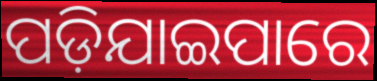
ପଡ଼ିଯାଇପାରେ